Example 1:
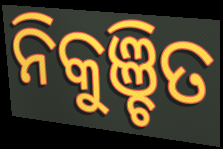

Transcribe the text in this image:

ନିକୁଞ୍ଚିତ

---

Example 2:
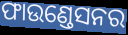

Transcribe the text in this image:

ଫାଉଣ୍ଡେସନର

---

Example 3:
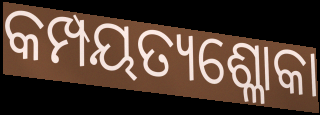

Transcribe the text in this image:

କମ୍ପୟତ୍ୟଶ୍ଳୋକା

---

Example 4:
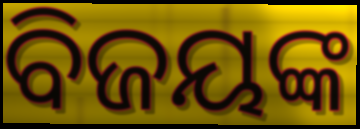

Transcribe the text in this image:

ବିଜୟଙ୍କ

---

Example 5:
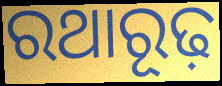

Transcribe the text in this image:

ରଥାରୂଢ଼